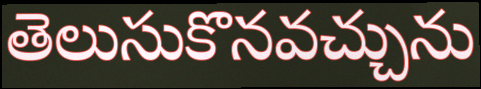
తెలుసుకొనవచ్చును